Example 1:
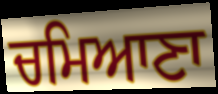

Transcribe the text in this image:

ਚਮਿਆਣਾ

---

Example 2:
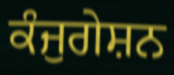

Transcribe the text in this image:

ਕੰਜੁਗੇਸ਼ਨ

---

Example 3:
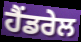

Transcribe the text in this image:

ਹੈਂਡਰੇਲ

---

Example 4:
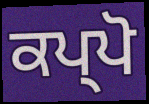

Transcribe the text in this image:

ਕਪ੍ਪੋ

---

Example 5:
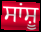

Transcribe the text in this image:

ਸਾਂਸ਼ੂ